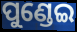
ପୁଣ୍ଡେଇ